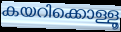
കയറിക്കൊള്ളൂ